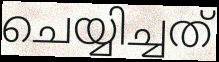
ചെയ്യിച്ചത്